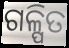
ଗଳ୍ପିତ